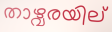
താഴ്വരയില്